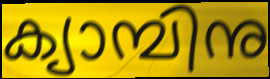
ക്യാമ്പിനു